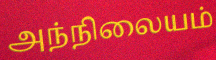
அந்நிலையம்